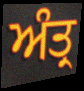
ਅੰਤ੍ਰ